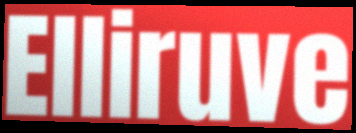
Elliruve